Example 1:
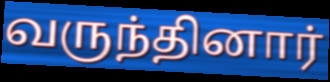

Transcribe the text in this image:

வருந்தினார்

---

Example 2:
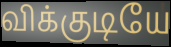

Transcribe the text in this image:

விக்குடியே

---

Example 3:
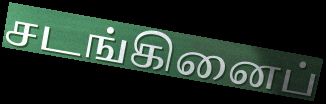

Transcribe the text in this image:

சடங்கினைப்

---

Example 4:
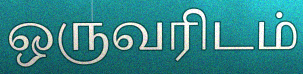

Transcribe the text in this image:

ஒருவரிடம்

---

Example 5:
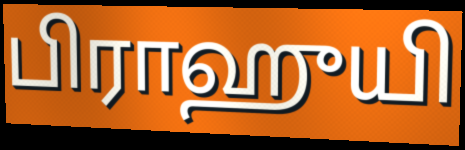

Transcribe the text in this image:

பிராஹுயி